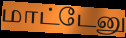
மாட்டேனு